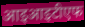
आइआइटीएफ